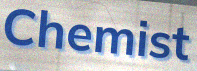
Chemist